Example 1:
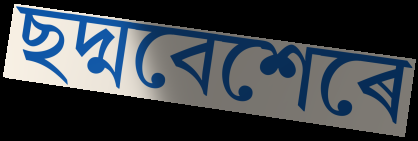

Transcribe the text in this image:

ছদ্মবেশেৰে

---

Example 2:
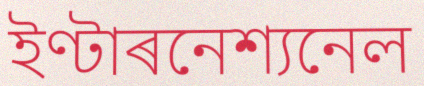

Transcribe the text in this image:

ইণ্টাৰনেশ্যনেল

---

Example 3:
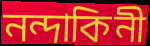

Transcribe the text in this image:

নন্দাকিনী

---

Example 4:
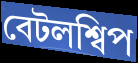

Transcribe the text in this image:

বেটলশ্বিপ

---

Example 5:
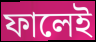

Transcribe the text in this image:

ফালেই